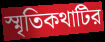
স্মৃতিকথাটির